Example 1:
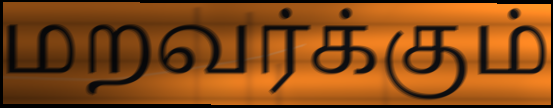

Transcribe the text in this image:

மறவர்க்கும்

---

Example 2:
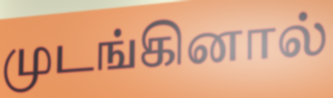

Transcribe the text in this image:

முடங்கினால்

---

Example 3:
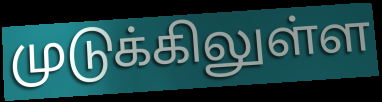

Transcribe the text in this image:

முடுக்கிலுள்ள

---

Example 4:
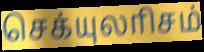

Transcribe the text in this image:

செக்யுலரிசம்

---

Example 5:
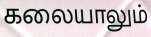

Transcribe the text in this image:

கலையாலும்